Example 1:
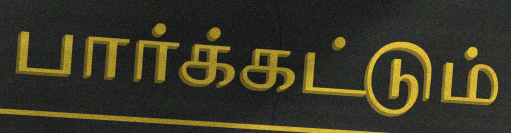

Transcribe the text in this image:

பார்க்கட்டும்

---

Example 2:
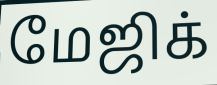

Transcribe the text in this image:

மேஜிக்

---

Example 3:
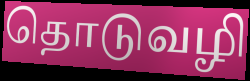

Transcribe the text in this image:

தொடுவழி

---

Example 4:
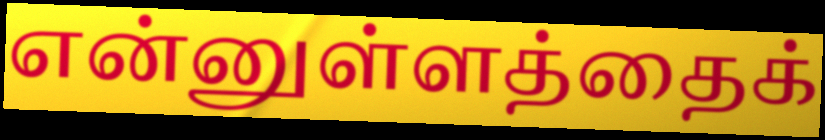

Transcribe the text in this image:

என்னுள்ளத்தைக்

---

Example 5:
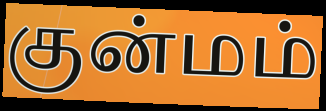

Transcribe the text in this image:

குன்மம்